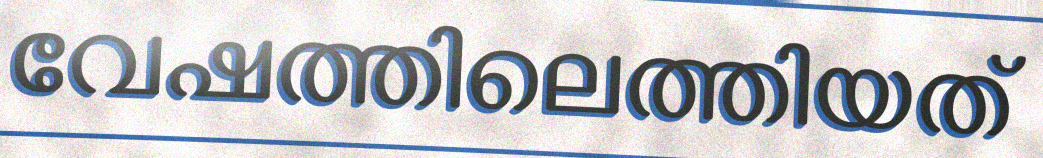
വേഷത്തിലെത്തിയത്